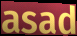
asad